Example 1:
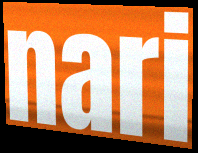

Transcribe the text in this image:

nari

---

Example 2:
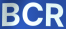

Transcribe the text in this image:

BCR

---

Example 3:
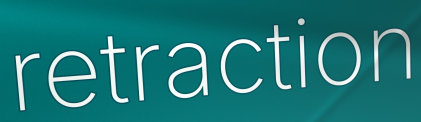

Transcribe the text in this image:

retraction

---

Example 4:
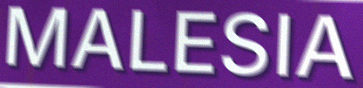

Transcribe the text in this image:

MALESIA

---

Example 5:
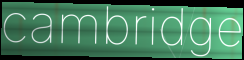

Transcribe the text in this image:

cambridge